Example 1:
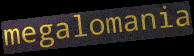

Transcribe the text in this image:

megalomania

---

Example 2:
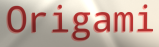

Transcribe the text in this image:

Origami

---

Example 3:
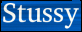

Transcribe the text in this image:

Stussy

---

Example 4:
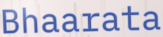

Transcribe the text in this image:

Bhaarata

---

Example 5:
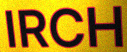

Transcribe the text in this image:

IRCH